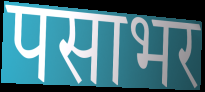
पसाभर